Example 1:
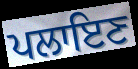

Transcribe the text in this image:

ਪਲਾਇਣ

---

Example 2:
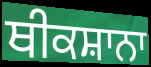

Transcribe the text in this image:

ਥੀਕਸ਼ਾਨਾ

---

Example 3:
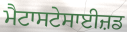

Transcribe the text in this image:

ਮੈਟਾਸਟੇਸਾਈਜ਼ਡ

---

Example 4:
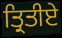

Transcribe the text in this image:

ਤ੍ਰਿਤੀਏ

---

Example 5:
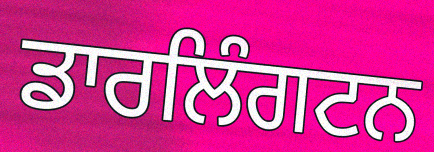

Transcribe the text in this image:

ਡਾਰਲਿੰਗਟਨ